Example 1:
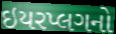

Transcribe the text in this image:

ઇયરપ્લગનો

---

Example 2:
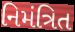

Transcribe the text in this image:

નિમંત્રિત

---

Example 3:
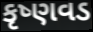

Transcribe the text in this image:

કૃષ્ણવડ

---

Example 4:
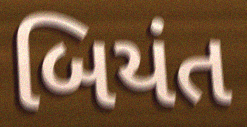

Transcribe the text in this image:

બિયંત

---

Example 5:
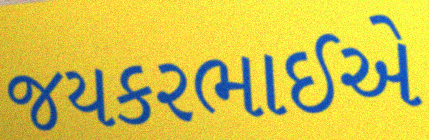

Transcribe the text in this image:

જયકરભાઈએ